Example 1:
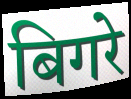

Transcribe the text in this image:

बिगरे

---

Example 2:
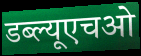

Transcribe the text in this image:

डब्ल्यूएचओ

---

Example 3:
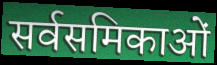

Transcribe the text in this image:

सर्वसमिकाओं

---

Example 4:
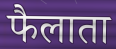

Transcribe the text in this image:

फैलाता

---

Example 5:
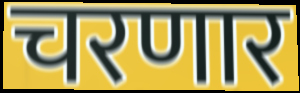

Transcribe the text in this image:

चरणार